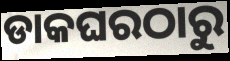
ଡାକଘରଠାରୁ